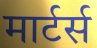
मार्टर्स